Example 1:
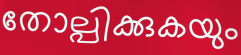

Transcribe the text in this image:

തോല്പിക്കുകയും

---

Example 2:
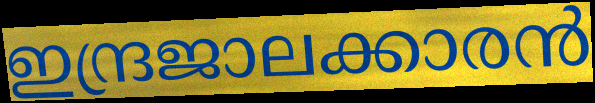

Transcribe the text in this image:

ഇന്ദ്രജാലക്കാരൻ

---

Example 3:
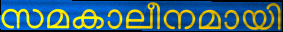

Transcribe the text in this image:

സമകാലീനമായി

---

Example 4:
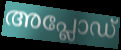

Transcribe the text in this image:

അപ്ലോഡ്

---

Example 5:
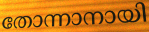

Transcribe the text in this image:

തോന്നാനായി